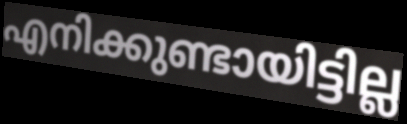
എനിക്കുണ്ടായിട്ടില്ല